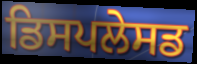
ਡਿਸਪਲੇਸਡ